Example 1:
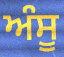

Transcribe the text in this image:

ਅੰਸੂ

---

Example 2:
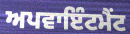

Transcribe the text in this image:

ਅਪਵਾਇੰਟਮੈਂਟ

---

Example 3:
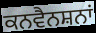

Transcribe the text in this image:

ਕਨਵੈਨਸ਼ਨਾਂ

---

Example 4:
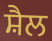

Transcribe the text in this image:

ਸ਼ੈਲ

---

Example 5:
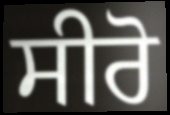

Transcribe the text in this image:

ਸੀਰੋ